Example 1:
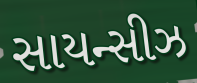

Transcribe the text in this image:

સાયન્સીઝ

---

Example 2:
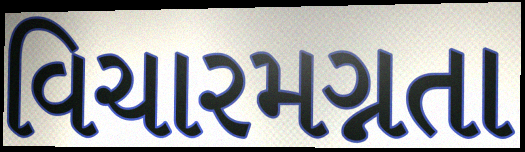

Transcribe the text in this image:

વિચારમગ્નતા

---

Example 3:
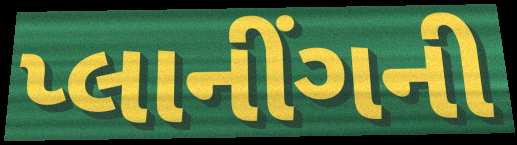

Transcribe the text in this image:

પ્લાનીંગની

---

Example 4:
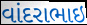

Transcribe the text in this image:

વાંદરાભાઇ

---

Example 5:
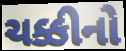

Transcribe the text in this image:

ચક્કીનો